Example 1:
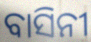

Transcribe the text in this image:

ବାସିନୀ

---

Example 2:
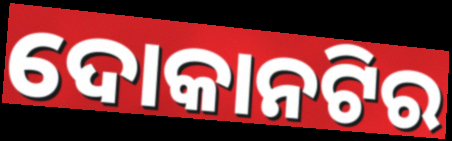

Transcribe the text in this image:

ଦୋକାନଟିର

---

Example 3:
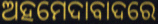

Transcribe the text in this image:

ଅହମେଦାବାଦରେ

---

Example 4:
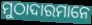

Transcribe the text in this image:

ମୁଠାଦାରମାନେ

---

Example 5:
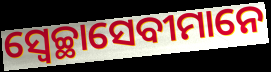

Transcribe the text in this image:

ସ୍ୱେଚ୍ଛାସେବୀମାନେ